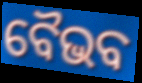
ବୈଭବ